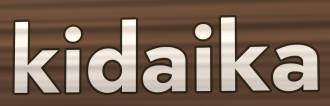
kidaika